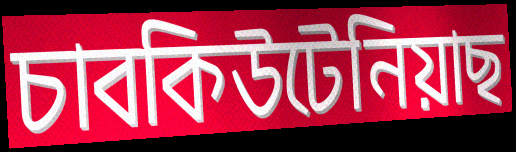
চাবকিউটেনিয়াছ